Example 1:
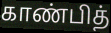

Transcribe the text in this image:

காண்பித்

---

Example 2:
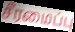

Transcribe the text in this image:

சீரமைப்பு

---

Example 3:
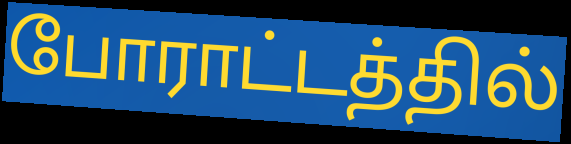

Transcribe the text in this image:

போராட்டத்தில்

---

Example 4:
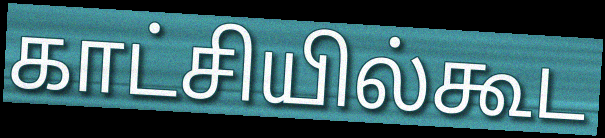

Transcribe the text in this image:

காட்சியில்கூட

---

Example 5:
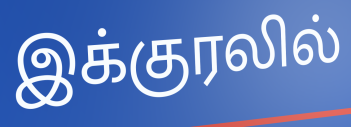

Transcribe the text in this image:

இக்குரலில்